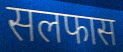
सलफास